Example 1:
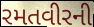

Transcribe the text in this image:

રમતવીરની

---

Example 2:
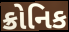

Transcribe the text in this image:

ક્રોનિક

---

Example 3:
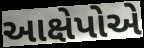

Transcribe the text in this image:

આક્ષેપોએ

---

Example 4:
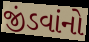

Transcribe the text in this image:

જીંડવાંનો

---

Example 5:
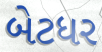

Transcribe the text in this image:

બેટધર